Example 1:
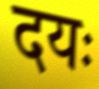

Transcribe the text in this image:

दयः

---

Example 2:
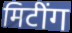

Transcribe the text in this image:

मिटींग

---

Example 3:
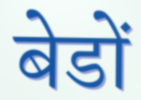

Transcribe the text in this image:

बेडों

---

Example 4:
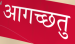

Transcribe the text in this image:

आगच्छतु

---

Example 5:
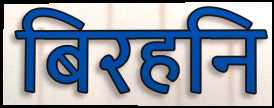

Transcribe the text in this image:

बिरहनि